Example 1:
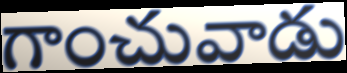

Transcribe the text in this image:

గాంచువాడు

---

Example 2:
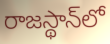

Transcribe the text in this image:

రాజస్థాన్‌లో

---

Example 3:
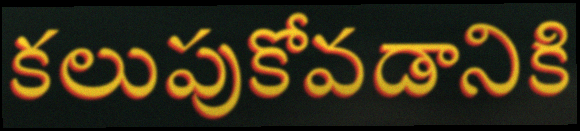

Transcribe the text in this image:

కలుపుకోవడానికి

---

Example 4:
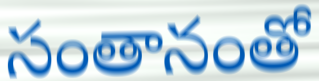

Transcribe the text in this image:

సంతానంతో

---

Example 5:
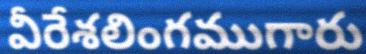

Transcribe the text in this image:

వీరేశలింగముగారు